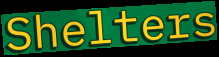
Shelters